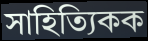
সাহিত্যিকক